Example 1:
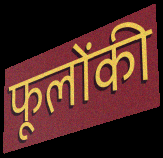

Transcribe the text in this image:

फूलोंकी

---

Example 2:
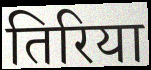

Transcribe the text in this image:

तिरिया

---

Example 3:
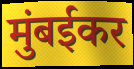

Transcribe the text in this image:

मुंबईकर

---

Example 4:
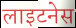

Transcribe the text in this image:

लाइटनेस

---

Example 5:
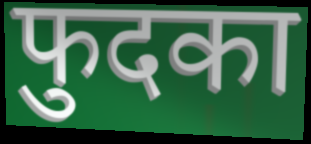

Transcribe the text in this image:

फुदका